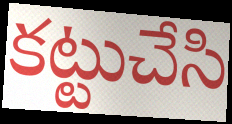
కట్టుచేసి